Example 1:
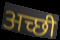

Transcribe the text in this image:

अच्‍छी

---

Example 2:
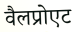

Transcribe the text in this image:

वैलप्रोएट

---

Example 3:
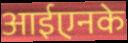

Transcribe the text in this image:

आईएनके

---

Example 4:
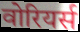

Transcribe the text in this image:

वोरियर्स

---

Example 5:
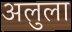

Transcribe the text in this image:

अलुला